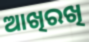
ଆଖିରଖି